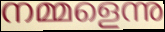
നമ്മളെന്നു